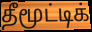
தீமூட்டிக்